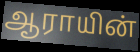
ஆராயின்